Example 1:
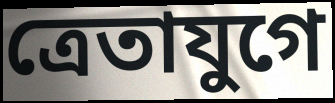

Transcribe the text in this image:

ত্রেতাযুগে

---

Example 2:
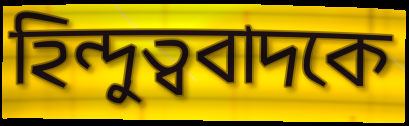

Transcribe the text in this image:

হিন্দুত্ববাদকে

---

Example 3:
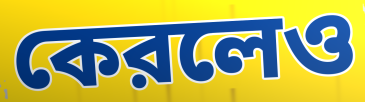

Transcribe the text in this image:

কেরলেও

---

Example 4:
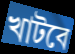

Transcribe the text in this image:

খাটবে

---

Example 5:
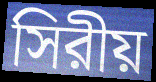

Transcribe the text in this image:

সিরীয়